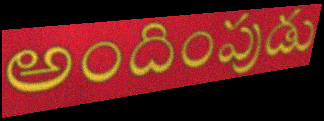
అందింపుడు